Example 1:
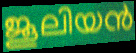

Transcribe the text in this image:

ജൂലിയൻ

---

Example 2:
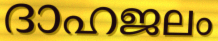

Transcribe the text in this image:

ദാഹജലം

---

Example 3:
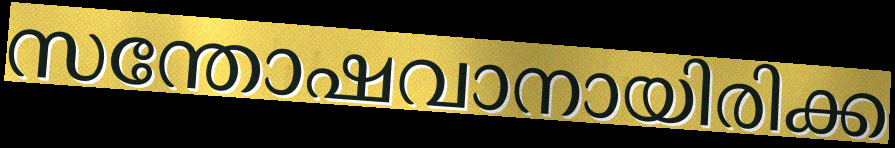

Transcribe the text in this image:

സന്തോഷവാനായിരിക്ക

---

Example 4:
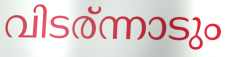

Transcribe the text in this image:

വിടര്ന്നാടും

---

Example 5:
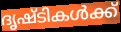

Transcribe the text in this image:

ദൃഷ്ടികൾക്ക്